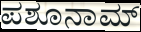
ಪಶೂನಾಮ್